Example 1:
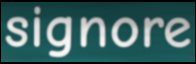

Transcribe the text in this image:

signore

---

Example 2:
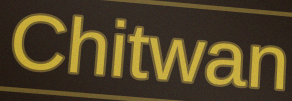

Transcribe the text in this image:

Chitwan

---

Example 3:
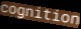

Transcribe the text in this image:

cognition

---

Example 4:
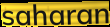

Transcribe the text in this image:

saharan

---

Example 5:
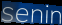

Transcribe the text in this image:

senin